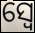
ସ୍ୱେ